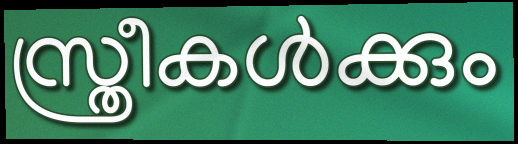
സ്ത്രീകൾക്കും